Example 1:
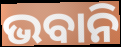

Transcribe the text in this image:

ଭବାନି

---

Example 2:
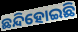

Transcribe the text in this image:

ଛନ୍ଦିହୋଇଛି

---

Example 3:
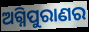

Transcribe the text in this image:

ଅଗ୍ନିପୁରାଣର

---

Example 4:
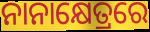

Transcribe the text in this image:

ନାନାକ୍ଷେତ୍ରରେ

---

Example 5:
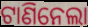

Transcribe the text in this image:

ଟାଣିନେଲା